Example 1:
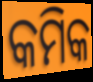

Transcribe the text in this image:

କମିକ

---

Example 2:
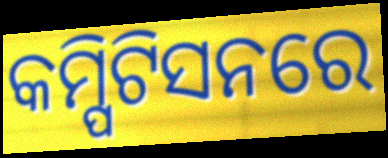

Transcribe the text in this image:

କମ୍ପିଟିସନରେ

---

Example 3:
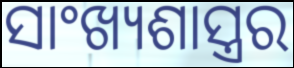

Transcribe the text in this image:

ସାଂଖ୍ୟଶାସ୍ତ୍ରର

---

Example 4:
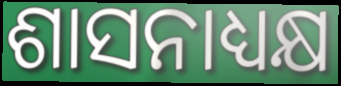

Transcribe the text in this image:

ଶାସନାଧ୍ୟକ୍ଷ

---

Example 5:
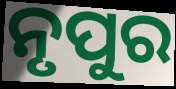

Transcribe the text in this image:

ନୃପୁର